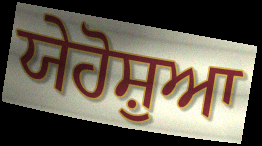
ਯੇਹੋਸ਼ੁਆ